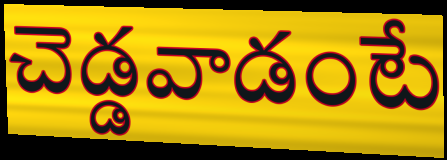
చెడ్డవాడంటే